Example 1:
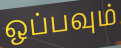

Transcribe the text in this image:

ஒப்பவும்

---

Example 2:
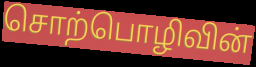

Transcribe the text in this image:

சொற்பொழிவின்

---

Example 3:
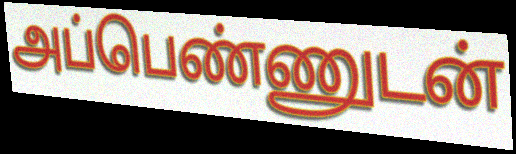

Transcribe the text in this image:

அப்பெண்ணுடன்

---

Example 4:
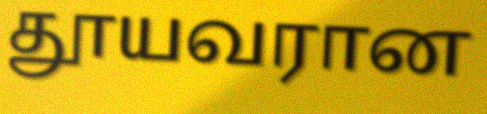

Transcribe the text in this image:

தூயவரான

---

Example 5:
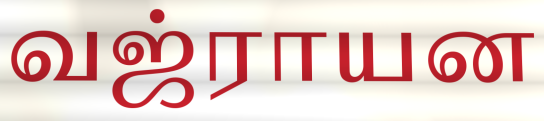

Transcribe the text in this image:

வஜ்ராயன